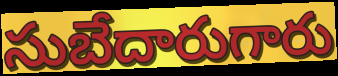
సుబేదారుగారు